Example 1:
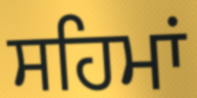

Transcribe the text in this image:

ਸਹਿਮਾਂ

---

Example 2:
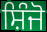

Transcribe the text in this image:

ਸ਼ਿੰਜੋ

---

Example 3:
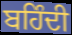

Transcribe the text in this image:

ਬਹਿੰਦੀ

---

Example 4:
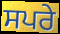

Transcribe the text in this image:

ਸਪਰੇ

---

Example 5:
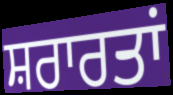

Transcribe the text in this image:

ਸ਼ਰਾਰਤਾਂ